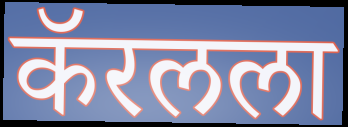
कॅरलला